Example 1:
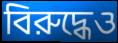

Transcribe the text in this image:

বিৰুদ্ধেও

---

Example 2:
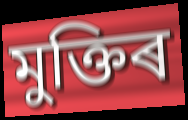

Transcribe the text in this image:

মুক্তিৰ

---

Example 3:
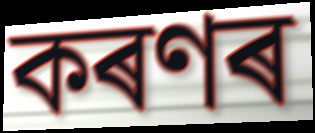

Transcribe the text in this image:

কৰণৰ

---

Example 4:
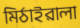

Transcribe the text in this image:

মিঠাইৱালা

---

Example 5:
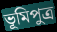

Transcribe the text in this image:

ভূমিপুত্ৰ